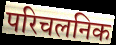
परिचलनिक